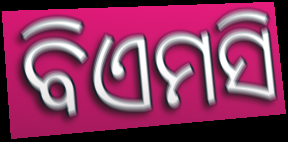
ବିଏମସି